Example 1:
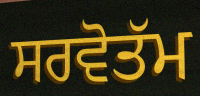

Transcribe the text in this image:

ਸਰਵੋਤੱਮ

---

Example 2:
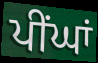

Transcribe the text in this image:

ਪੀਂਘਾਂ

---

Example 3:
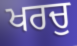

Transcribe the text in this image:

ਖਰਚੁ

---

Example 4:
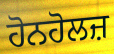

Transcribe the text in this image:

ਹੋਨਹੋਲਜ਼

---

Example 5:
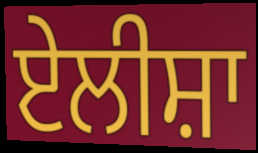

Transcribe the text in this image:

ਏਲੀਸ਼ਾ